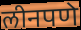
लीनपणे